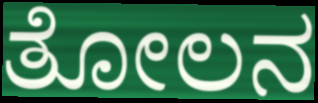
ತೋಲನ